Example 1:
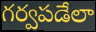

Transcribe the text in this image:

గర్వపడేలా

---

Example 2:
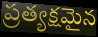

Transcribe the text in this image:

ప్రత్యక్షమైన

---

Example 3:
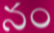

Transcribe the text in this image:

నం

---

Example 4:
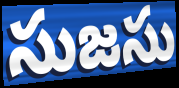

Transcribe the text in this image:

సుజసు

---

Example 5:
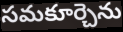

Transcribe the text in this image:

సమకూర్చెను